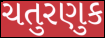
ચતુરણુક